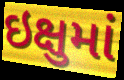
ઇક્ષુમાં